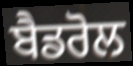
ਬੈਡਰੋਲ